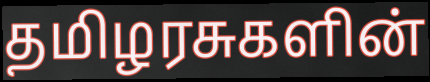
தமிழரசுகளின்